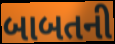
બાબતની